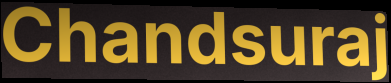
Chandsuraj